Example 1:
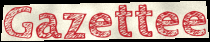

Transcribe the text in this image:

Gazettee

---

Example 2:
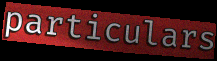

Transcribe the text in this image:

particulars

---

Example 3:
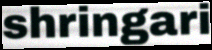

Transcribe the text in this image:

shringari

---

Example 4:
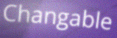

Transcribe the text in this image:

Changable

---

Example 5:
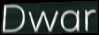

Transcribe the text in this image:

Dwar